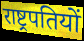
राष्ट्रपतियों